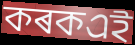
কৰকএই